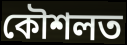
কৌশলত